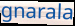
gnarala